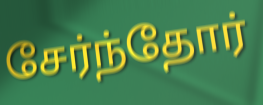
சேர்ந்தோர்